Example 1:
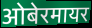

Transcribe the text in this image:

ओबेरमायर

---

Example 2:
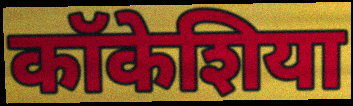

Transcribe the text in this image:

कॉकेशिया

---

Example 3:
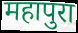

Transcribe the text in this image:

महापुरा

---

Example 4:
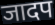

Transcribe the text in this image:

जादप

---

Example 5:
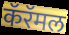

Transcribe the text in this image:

कॅरॅमल